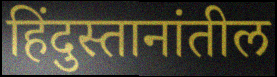
हिंदुस्तानांतील